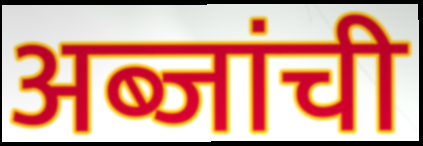
अब्जांची